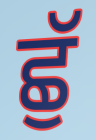
ਛੁੱ